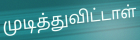
முடித்துவிட்டாள்